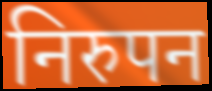
निरुपन